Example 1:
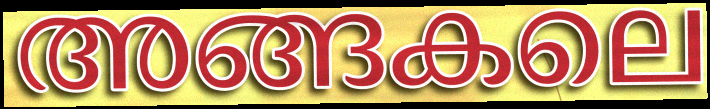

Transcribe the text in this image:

അങ്ങകലെ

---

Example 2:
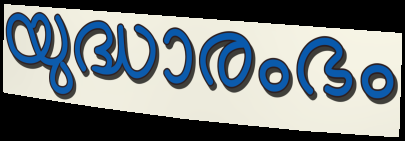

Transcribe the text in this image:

യുദ്ധാരംഭം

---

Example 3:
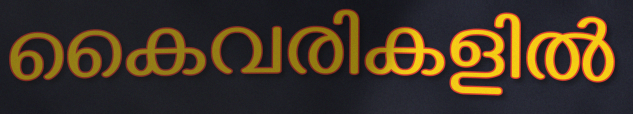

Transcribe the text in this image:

കൈവരികളിൽ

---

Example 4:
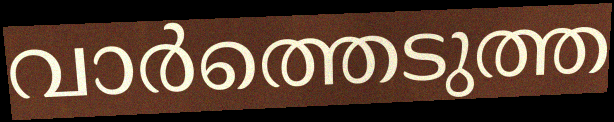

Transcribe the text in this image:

വാർത്തെടുത്ത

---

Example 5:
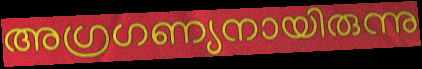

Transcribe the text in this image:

അഗ്രഗണ്യനായിരുന്നു